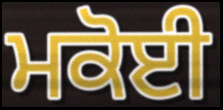
ਮਕੋਈ